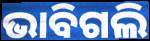
ଭାବିଗଲି